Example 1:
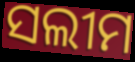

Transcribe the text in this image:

ସଲୀମ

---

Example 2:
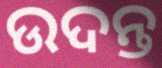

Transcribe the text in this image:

ଉଦନ୍ତ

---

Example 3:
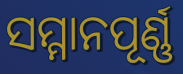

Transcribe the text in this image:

ସମ୍ମାନପୂର୍ଣ୍ଣ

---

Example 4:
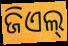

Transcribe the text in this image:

ଜିଏଲ୍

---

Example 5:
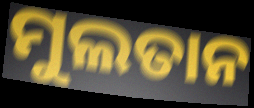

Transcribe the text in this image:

ମୁଲତାନ